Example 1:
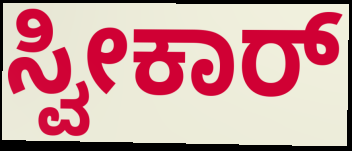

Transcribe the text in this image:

ಸ್ವೀಕಾರ್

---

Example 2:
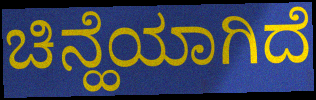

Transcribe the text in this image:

ಚಿನ್ಹೆಯಾಗಿದೆ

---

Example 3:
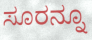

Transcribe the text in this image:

ಸೂರನ್ನೂ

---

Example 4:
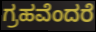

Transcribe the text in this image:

ಗ್ರಹವೆಂದರೆ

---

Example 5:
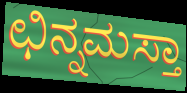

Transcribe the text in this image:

ಛಿನ್ನಮಸ್ತಾ